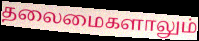
தலைமைகளாலும்